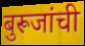
बुरूजांची